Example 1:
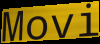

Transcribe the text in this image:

Movi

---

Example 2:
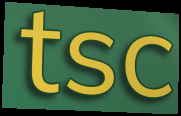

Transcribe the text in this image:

tsc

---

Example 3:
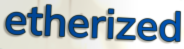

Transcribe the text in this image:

etherized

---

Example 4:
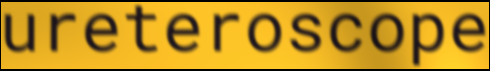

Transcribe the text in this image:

ureteroscope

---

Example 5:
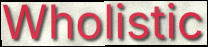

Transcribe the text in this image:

Wholistic